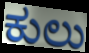
ಕುಲು